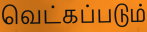
வெட்கப்படும்